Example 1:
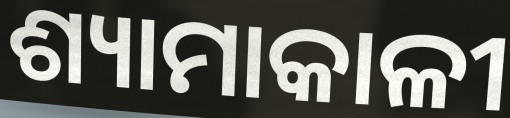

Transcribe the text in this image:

ଶ୍ୟାମାକାଳୀ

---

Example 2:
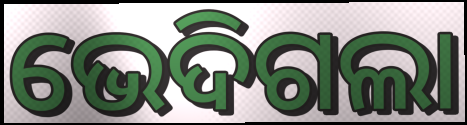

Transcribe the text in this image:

ଭେଦିଗଲା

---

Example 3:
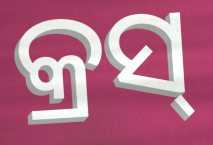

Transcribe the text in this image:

କ୍ରସ୍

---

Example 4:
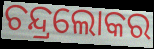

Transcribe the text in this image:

ଚନ୍ଦ୍ରଲୋକର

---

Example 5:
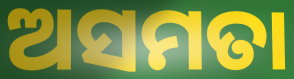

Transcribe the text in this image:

ଅସମତା